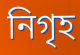
নিগৃহ